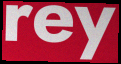
rey